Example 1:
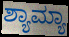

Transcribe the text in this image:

ಶ್ಯಾಮ್ಯಾ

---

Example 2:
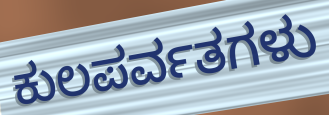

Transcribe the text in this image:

ಕುಲಪರ್ವತಗಳು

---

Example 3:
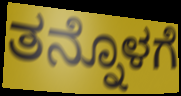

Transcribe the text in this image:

ತನ್ನೊಳಗೆ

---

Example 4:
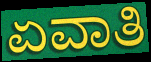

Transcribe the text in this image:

ಏವಾತಿ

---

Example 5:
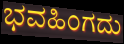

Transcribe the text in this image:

ಭವಹಿಂಗದು